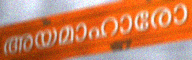
അയമാഹാരോ